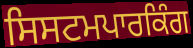
ਸਿਸਟਮਪਾਰਕਿੰਗ